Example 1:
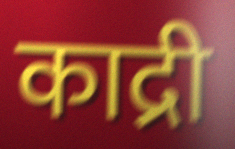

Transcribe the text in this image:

काद्री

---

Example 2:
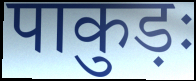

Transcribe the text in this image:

पाकुड़ः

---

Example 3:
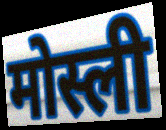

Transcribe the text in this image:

मोस्ली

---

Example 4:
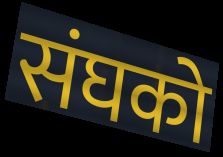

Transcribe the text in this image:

संघको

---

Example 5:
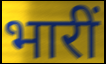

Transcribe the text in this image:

भारीं